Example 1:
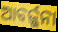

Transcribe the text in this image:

ଆବର୍ଜ୍ଜନା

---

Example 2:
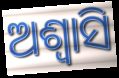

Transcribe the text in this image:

ଅଶ୍ୱାସି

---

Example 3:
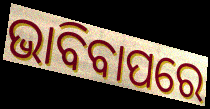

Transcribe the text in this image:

ଭାବିବାପରେ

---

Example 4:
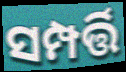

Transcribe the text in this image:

ସମ୍ପର୍ତ୍ତି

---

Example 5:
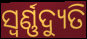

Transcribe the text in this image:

ସ୍ୱର୍ଣ୍ଣଦ୍ୟୁତି